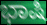
ಭಾಷಿ